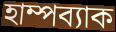
হাম্পব্যাক